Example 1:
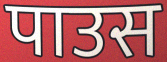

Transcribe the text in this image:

पाउस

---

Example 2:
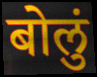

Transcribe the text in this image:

बोलुं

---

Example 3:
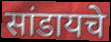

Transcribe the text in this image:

सांडायचे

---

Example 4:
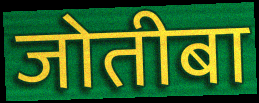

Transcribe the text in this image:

जोतीबा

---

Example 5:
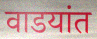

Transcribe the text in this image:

वाडयांत